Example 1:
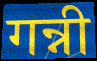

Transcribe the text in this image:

गन्नी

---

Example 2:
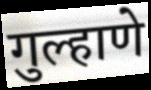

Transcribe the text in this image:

गुल्हाणे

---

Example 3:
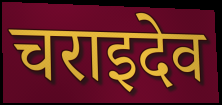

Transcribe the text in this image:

चराइदेव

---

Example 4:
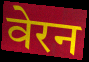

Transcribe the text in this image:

वेरन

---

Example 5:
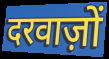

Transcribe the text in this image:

दरवाज़ों